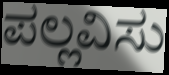
ಪಲ್ಲವಿಸು